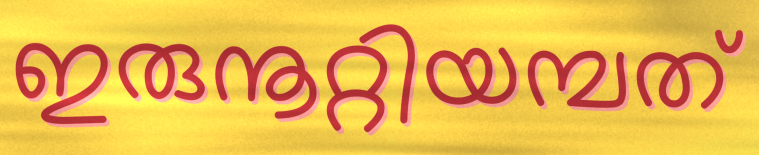
ഇരുനൂറ്റിയമ്പത്